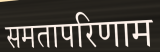
समतापरिणाम